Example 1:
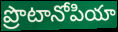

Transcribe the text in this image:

ప్రొటానోపియా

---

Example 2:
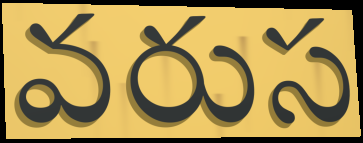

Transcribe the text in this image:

వరుస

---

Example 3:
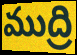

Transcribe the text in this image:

ముద్రి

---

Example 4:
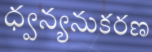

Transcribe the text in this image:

ధ్వన్యనుకరణ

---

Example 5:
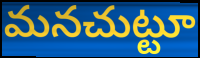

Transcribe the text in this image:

మనచుట్టూ